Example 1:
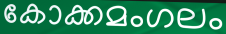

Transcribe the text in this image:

കോക്കമംഗലം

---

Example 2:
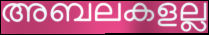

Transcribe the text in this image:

അബലകളല്ല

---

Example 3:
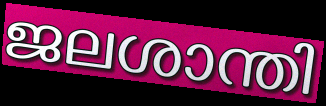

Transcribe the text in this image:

ജലശാന്തി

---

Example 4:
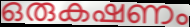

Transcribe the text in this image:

ഒരുകഷണം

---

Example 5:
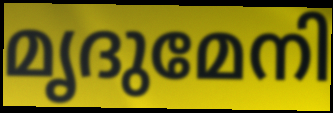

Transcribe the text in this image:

മൃദുമേനി